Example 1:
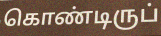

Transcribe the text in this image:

கொண்டிருப்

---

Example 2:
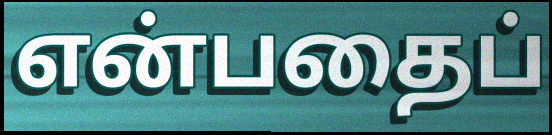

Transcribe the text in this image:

என்பதைப்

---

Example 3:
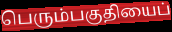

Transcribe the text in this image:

பெரும்பகுதியைப்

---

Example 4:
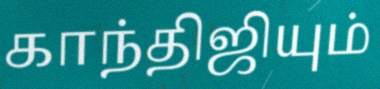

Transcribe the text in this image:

காந்திஜியும்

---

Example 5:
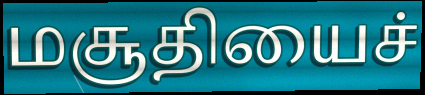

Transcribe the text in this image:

மசூதியைச்